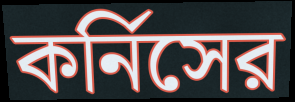
কর্নিসের